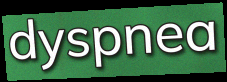
dyspnea